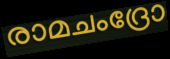
രാമചംദ്രോ